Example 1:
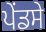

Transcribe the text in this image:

ਪੇਂਡਸੇ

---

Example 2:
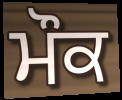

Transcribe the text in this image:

ਮੌਕ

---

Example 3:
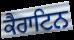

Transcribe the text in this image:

ਕੈਰਾਟਿਨ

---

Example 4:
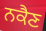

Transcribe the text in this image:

ਨਕੈਣ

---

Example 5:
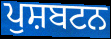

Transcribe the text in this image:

ਪੁਸ਼ਬਟਨ